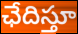
ఛేదిస్తూ